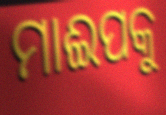
ମାଈପକୁ